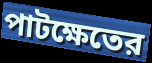
পাটক্ষেতের